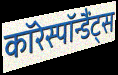
कॉरेस्पॉन्डैंट्स